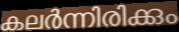
കലർന്നിരിക്കും